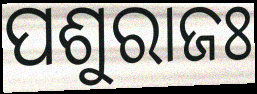
ପଶୁରାଜଃ